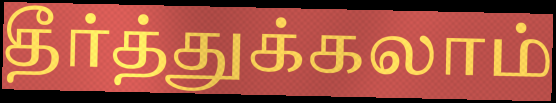
தீர்த்துக்கலாம்